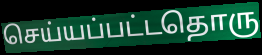
செய்யப்பட்டதொரு